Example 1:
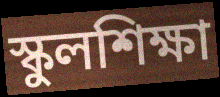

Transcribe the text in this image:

স্কুলশিক্ষা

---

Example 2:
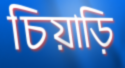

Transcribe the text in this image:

চিয়াড়ি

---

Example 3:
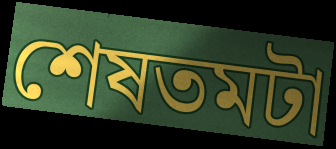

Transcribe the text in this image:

শেষতমটা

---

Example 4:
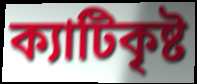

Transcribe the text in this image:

ক্যাটিকৃষ্ট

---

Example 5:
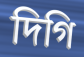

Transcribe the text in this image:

দিগি